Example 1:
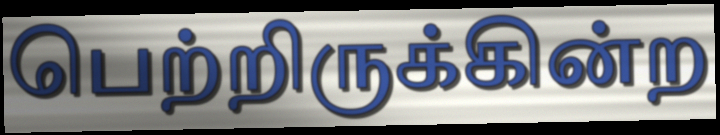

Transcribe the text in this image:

பெற்றிருக்கின்ற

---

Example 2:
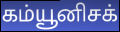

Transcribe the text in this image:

கம்யூனிசக்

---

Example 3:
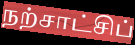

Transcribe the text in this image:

நற்சாட்சிப்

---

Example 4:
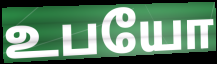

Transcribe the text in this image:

உபயோ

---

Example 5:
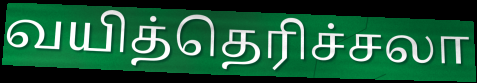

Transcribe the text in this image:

வயித்தெரிச்சலா